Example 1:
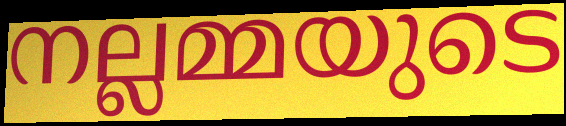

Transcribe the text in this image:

നല്ലമ്മയുടെ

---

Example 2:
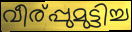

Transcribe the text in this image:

വീര്പ്പുമുട്ടിച്ച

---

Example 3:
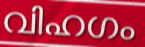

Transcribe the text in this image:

വിഹഗം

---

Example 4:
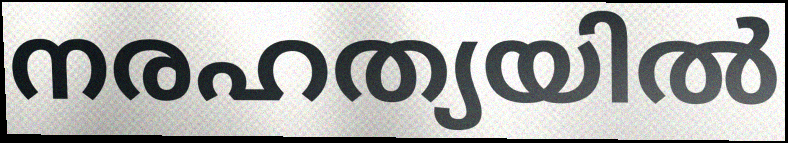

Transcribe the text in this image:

നരഹത്യയിൽ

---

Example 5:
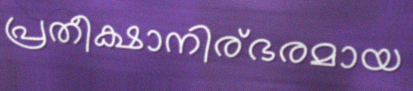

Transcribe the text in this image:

പ്രതീക്ഷാനിര്ഭരമായ